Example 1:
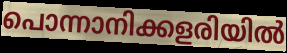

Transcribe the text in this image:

പൊന്നാനിക്കളരിയിൽ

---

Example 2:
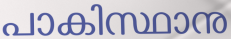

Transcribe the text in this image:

പാകിസ്ഥാനു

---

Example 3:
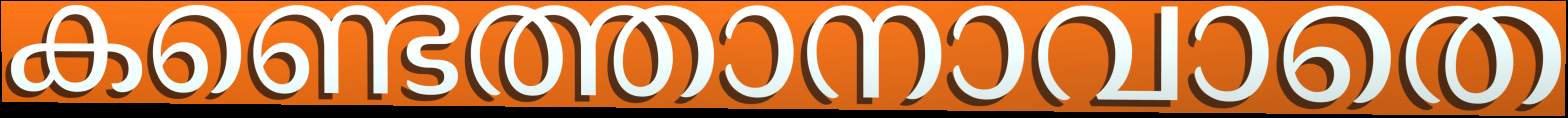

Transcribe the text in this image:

കണ്ടെത്താനാവാതെ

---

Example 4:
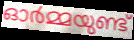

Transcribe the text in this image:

ഓർമ്മയുണ്ട്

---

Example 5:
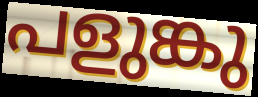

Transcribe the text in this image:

പളുങ്കു